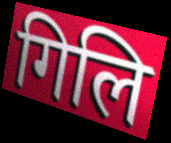
गिलि